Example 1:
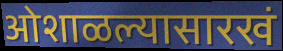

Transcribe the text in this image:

ओशाळल्यासारखं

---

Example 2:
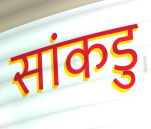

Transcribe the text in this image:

सांकडु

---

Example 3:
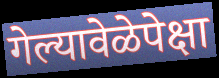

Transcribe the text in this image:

गेल्यावेळेपेक्षा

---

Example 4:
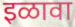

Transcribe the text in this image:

इळावा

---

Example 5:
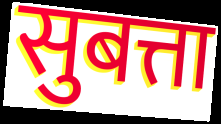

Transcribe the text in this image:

सुबत्ता